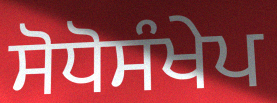
ਸੋਧੋਸੰਖੇਪ